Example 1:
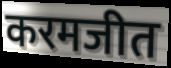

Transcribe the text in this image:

करमजीत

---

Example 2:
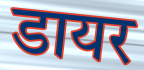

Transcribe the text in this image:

डायर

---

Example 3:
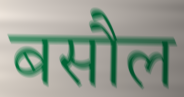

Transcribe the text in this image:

बसौल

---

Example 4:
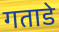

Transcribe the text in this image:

गताडे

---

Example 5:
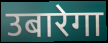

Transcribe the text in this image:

उबारेगा